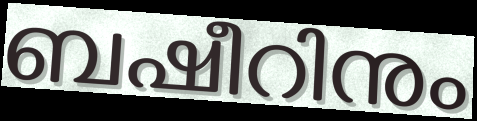
ബഷീറിനും